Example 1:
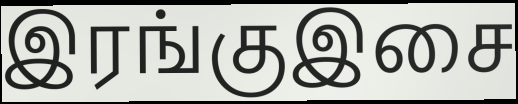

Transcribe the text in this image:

இரங்குஇசை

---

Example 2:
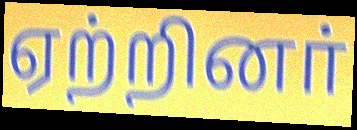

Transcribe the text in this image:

ஏற்றினர்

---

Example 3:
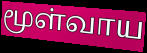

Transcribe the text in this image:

மூள்வாய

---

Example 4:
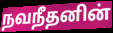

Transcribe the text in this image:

நவநீதனின்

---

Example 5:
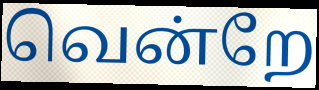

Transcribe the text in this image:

வென்றே